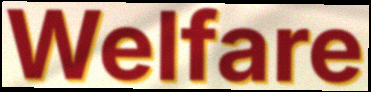
Welfare